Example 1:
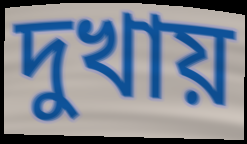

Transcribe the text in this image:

দুখায়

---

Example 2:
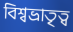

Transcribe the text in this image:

বিশ্বভ্রাতৃত্ব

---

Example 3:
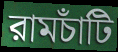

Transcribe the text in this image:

রামচাঁটি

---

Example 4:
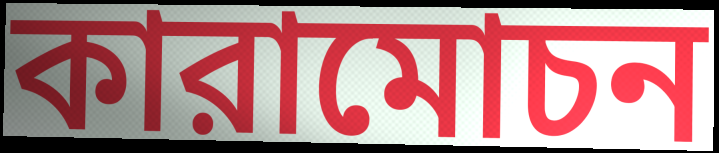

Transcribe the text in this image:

কারামোচন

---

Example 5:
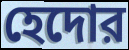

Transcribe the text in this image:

হেদোর